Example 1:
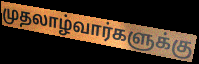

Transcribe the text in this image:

முதலாழ்வார்களுக்கு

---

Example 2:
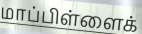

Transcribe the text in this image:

மாப்பிள்ளைக்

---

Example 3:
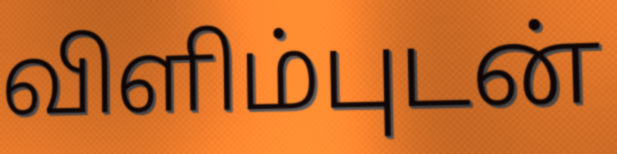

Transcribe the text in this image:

விளிம்புடன்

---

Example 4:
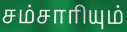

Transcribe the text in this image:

சம்சாரியும்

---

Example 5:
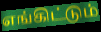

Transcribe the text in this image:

எங்கிட்டும்